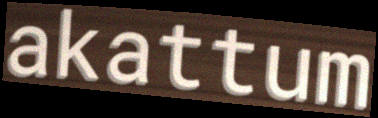
akattum